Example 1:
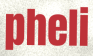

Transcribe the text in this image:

pheli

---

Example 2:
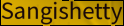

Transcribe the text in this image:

Sangishetty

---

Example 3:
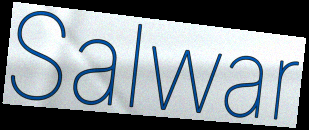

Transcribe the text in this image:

Salwar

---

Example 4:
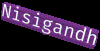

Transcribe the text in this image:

Nisigandh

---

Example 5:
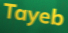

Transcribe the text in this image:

Tayeb